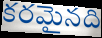
కరమైనది